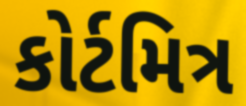
કોર્ટમિત્ર